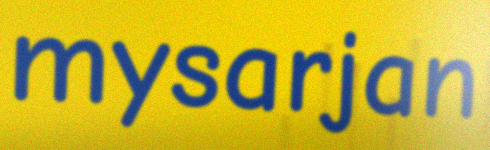
mysarjan